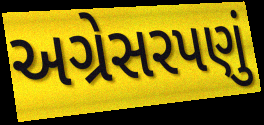
અગ્રેસરપણું